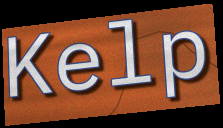
Kelp